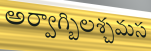
అర్వాగ్బిలశ్చమస